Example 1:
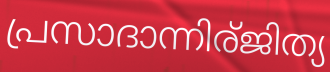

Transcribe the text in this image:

പ്രസാദാന്നിര്ജിത്യ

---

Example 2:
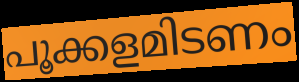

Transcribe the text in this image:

പൂക്കളമിടണം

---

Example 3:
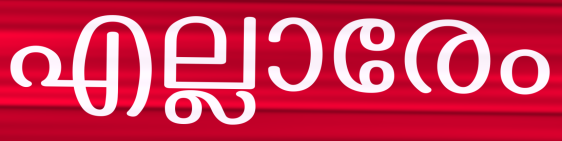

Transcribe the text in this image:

എല്ലാരേം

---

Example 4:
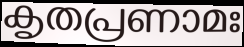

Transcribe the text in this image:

കൃതപ്രണാമഃ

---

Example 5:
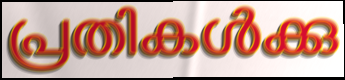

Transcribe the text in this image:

പ്രതികൾക്കു